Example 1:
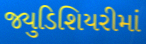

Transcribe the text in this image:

જ્યુડિશિયરીમાં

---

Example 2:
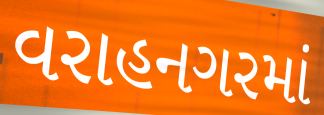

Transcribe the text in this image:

વરાહનગરમાં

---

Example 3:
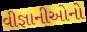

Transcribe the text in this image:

વીજ્ઞાનીઓનો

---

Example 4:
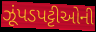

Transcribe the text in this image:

ઝૂંપડપટ્ટીઓની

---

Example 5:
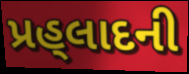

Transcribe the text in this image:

પ્રહ્‌લાદની